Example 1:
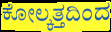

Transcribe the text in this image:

ಕೋಲ್ಕತ್ತದಿಂದ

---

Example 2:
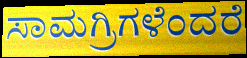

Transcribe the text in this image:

ಸಾಮಗ್ರಿಗಳೆಂದರೆ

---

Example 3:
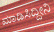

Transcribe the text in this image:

ಮಾಡಿಸಿದ್ದೀನಿ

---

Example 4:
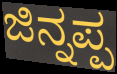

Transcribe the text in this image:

ಜಿನ್ನಪ್ಪ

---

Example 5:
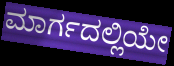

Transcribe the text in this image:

ಮಾರ್ಗದಲ್ಲಿಯೇ